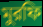
মুরফি